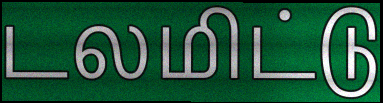
டலமிட்டு